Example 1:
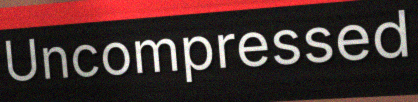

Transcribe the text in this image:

Uncompressed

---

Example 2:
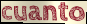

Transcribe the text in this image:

cuanto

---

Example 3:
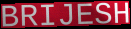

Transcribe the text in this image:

BRIJESH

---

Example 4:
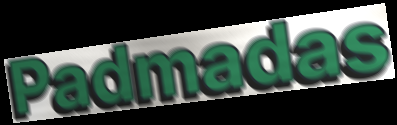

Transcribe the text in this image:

Padmadas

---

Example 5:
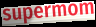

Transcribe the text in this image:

supermom